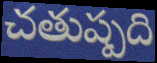
చతుష్పది